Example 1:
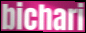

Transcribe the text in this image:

bichari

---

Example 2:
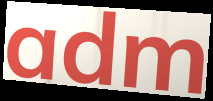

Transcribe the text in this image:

adm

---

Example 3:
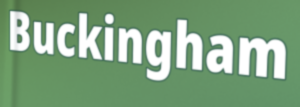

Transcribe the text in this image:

Buckingham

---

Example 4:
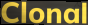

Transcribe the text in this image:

Clonal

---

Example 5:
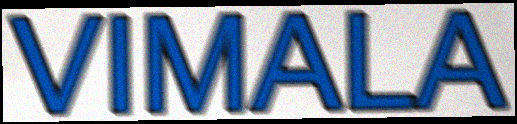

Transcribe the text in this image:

VIMALA